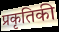
प्रकृतिकी